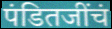
पंडितजींचं